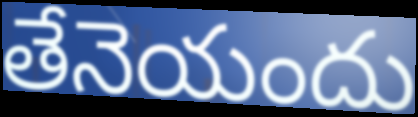
తేనెయందు